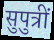
सुपुत्रीं